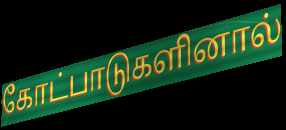
கோட்பாடுகளினால்